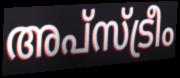
അപ്സ്ട്രീം